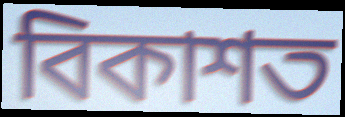
বিকাশত